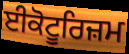
ਈਕੋਟੂਰਿਜ਼ਮ